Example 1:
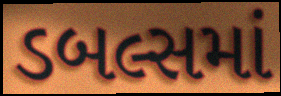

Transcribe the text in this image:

ડબલ્સમાં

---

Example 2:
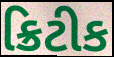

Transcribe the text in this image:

ક્રિટીક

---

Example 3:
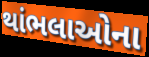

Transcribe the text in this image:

થાંભલાઓના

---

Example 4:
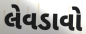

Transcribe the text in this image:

લેવડાવો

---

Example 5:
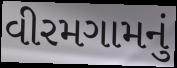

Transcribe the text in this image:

વીરમગામનું